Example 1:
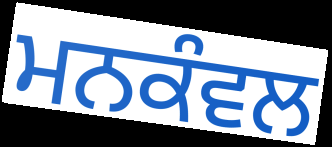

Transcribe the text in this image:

ਮਨਕੰਵਲ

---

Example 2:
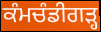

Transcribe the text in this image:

ਕੰਮਚੰਡੀਗੜ੍ਹ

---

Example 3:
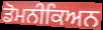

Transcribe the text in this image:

ਡੋਮਨੀਕਿਅਨ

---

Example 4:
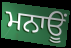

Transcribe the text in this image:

ਮਨਾਊਂ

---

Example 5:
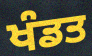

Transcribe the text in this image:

ਖੰਡਤ